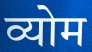
व्योम